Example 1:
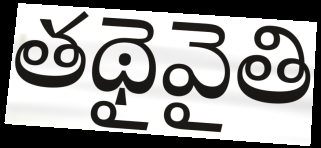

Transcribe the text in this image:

తథైవైతి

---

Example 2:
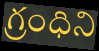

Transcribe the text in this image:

గ్రంధిని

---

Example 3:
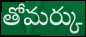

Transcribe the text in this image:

తోమర్కు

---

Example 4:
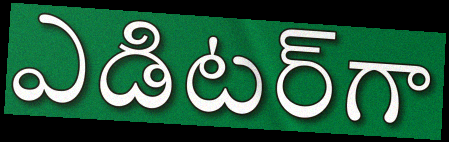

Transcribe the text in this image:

ఎడిటర్‌గా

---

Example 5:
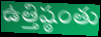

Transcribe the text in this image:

ఉత్తిష్ఠంతు